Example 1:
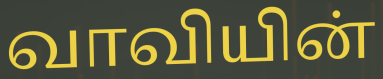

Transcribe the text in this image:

வாவியின்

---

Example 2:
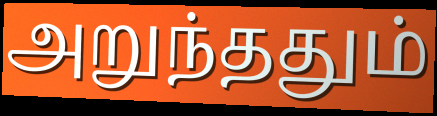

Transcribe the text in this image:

அறுந்ததும்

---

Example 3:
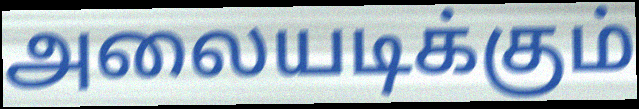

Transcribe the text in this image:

அலையடிக்கும்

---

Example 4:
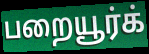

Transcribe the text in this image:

பறையூர்க்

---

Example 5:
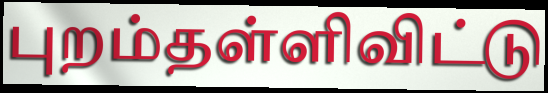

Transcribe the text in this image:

புறம்தள்ளிவிட்டு